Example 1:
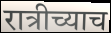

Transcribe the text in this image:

रात्रीच्याच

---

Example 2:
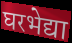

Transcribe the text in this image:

घरभेद्या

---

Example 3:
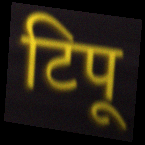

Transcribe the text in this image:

टिपू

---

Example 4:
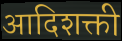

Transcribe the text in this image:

आदिशक्ती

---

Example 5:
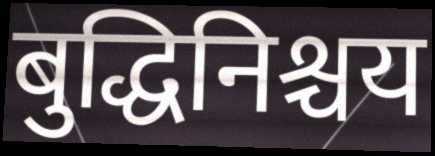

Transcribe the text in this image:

बुद्धिनिश्चय